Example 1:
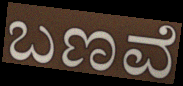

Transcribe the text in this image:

ಬಣವೆ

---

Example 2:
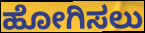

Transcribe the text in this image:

ಹೋಗಿಸಲು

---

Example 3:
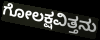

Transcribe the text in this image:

ಗೋಲಕ್ಷವಿತ್ತನು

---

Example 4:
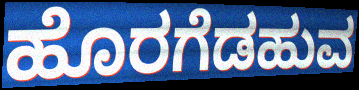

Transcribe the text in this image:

ಹೊರಗೆಡಹುವ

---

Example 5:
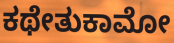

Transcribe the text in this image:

ಕಥೇತುಕಾಮೋ